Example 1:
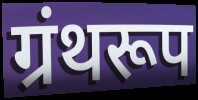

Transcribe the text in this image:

ग्रंथरूप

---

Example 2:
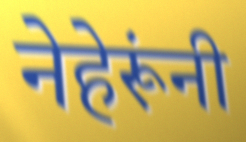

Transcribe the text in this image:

नेहेरूंनी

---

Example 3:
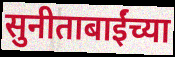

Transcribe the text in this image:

सुनीताबाईंच्या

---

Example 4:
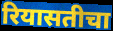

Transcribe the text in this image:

रियासतीचा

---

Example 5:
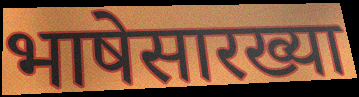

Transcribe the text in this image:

भाषेसारख्या